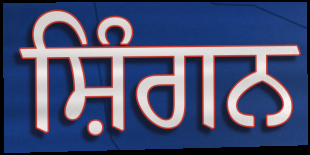
ਸ਼ਿੰਗਨ